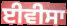
ਈਵੀਸਾ